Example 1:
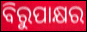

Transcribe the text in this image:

ବିରୁପାକ୍ଷର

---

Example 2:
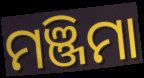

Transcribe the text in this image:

ମଞ୍ଜିମା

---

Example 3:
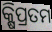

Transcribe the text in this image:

କ୍ଷିପ୍ରତମ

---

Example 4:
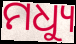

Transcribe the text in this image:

ମଧ୍ୟୁ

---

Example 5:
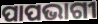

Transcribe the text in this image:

ପାପଭାଗୀ